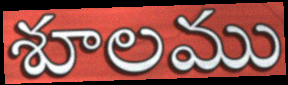
శూలము